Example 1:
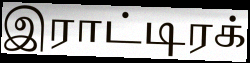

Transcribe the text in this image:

இராட்டிரக்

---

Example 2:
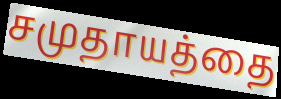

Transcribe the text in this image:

சமுதாயத்தை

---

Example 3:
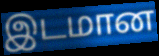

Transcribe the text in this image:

இடமான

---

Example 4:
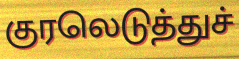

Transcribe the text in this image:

குரலெடுத்துச்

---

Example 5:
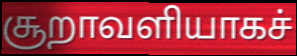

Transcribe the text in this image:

சூறாவளியாகச்